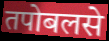
तपोबलसे